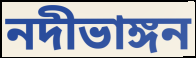
নদীভাঙ্গন